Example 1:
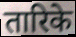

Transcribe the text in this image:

तारिके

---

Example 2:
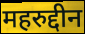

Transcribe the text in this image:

महरुद्दीन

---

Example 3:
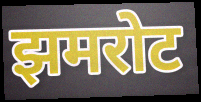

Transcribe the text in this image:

झमरोट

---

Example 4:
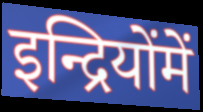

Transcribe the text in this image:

इन्द्रियोंमें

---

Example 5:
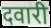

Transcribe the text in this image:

दवारी